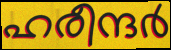
ഹരീന്ദർ